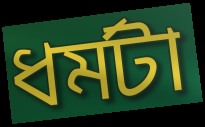
ধর্মটা